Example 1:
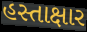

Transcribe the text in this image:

હસ્તાક્ષાર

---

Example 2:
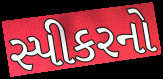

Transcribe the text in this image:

સ્પીકરનો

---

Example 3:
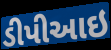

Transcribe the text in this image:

ડીપીઆઇ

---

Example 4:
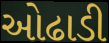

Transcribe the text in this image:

ઓઢાડી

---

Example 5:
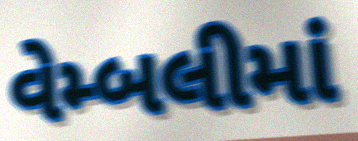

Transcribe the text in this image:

વેમ્બલીમાં